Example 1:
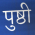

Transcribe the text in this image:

पुष्ठी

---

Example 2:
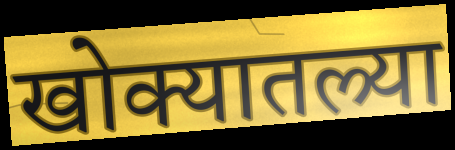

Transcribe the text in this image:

खोक्यातल्या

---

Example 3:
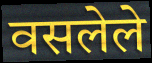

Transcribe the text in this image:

वसलेले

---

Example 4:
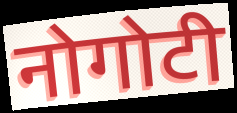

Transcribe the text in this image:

नोगोटी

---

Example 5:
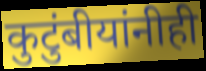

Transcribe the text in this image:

कुटुंबीयांनीही